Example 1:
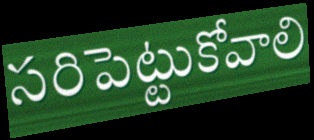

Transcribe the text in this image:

సరిపెట్టుకోవాలి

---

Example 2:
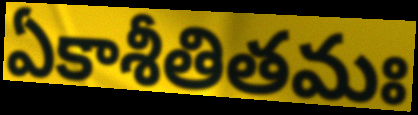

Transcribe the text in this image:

ఏకాశీతితమః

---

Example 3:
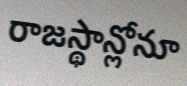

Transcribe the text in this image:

రాజస్థాన్లోనూ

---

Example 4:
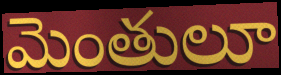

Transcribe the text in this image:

మెంతులూ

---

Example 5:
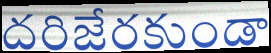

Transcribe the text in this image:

దరిజేరకుండా